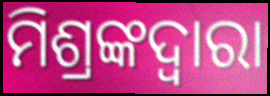
ମିଶ୍ରଙ୍କଦ୍ୱାରା